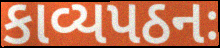
કાવ્યપઠનઃ